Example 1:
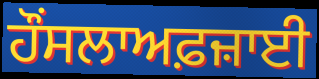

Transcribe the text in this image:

ਹੌਂਸਲਾਅਫ਼ਜ਼ਾਈ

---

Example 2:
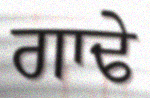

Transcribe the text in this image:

ਗਾਢੇ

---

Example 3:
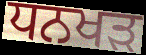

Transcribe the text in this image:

ਧਨਖਡ਼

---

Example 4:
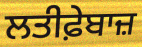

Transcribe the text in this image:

ਲਤੀਫ਼ੇਬਾਜ਼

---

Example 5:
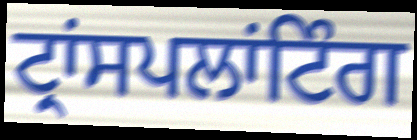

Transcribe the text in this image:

ਟ੍ਰਾਂਸਪਲਾਂਟਿੰਗ